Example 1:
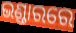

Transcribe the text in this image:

ଭଣ୍ଡାରରେ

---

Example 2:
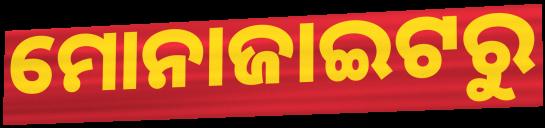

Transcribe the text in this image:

ମୋନାଜାଇଟରୁ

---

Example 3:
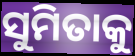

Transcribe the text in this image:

ସୁମିତାକୁ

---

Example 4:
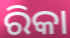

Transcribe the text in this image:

ରିକା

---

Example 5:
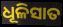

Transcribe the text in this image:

ଧୂଳିସାତ